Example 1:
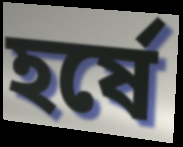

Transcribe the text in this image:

হর্ষে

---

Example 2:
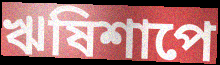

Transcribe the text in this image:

ঋষিশাপে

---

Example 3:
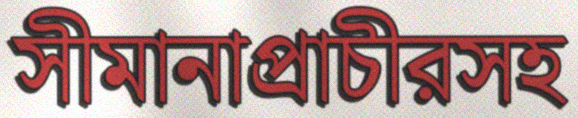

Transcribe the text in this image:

সীমানাপ্রাচীরসহ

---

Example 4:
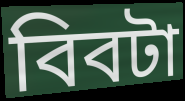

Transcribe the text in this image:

বিবটা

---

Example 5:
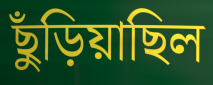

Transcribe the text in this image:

ছুঁড়িয়াছিল